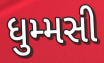
ધુમ્મસી